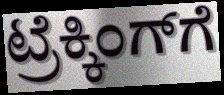
ಟ್ರೆಕ್ಕಿಂಗ್‌ಗೆ